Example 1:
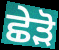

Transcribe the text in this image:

ਛੇੜੋ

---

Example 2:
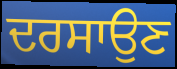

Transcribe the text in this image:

ਦਰਸਾਉਣ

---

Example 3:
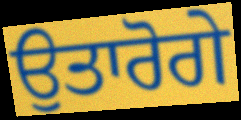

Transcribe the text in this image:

ਉਤਾਰੋਗੇ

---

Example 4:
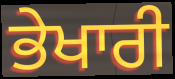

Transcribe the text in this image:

ਭੇਖਾਰੀ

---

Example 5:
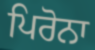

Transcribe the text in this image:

ਪਿਰੋਨਾ